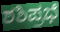
ಶಶಿಪ್ರಭೆ